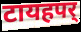
टायहपर्